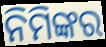
ନିମିଙ୍କର